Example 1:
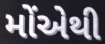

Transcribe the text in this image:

મોંએથી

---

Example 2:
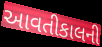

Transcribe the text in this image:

આવતીકાલની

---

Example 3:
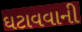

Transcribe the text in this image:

ઘટાવવાની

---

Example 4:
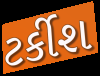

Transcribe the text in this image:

ટર્કીશ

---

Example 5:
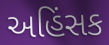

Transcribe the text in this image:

અહિંસક